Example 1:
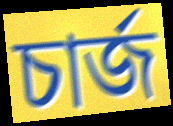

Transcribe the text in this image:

চার্জ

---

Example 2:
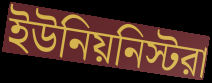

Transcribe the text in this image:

ইউনিয়নিস্টরা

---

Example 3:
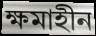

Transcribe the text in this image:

ক্ষমাহীন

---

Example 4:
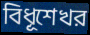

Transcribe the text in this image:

বিধূশেখর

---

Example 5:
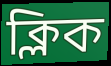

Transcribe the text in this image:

ক্লিক